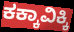
ಕಕ್ಕಾವಿಕ್ಕಿ